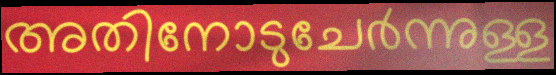
അതിനോടുചേർന്നുള്ള